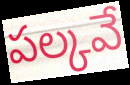
పల్కవే